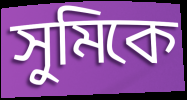
সুমিকে